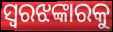
ସ୍ୱରଝଙ୍କାରକୁ